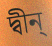
দ্বীন্